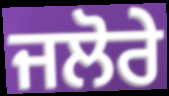
ਜਲੋਰੇ